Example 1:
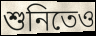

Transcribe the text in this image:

শুনিতেও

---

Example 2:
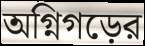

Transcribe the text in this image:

অগ্নিগড়ের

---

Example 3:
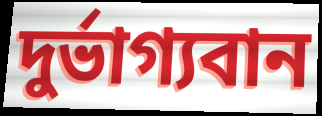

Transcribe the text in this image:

দুর্ভাগ্যবান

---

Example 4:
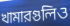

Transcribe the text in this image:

খামারগুলিও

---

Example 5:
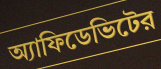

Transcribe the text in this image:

অ্যাফিডেভিটের